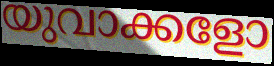
യുവാക്കളോ